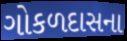
ગોકળદાસના